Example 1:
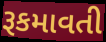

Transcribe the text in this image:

રૂકમાવતી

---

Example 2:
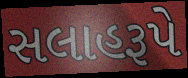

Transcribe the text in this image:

સલાહરૂપે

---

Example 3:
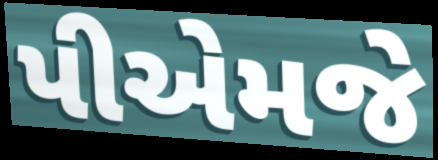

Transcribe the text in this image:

પીએમજે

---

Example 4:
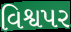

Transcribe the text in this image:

વિશ્વપર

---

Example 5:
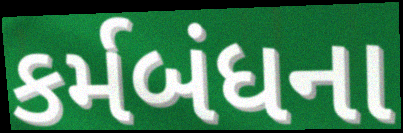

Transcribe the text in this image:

કર્મબંધના